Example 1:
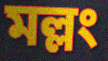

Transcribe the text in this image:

মল্লং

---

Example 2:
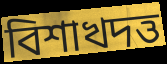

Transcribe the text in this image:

বিশাখদত্ত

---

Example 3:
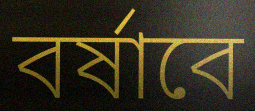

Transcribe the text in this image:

বর্ষাবে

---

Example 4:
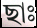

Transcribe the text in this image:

ছাঃ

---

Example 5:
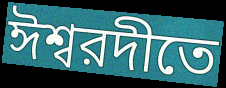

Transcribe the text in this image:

ঈশ্বরদীতে